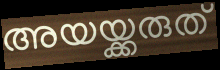
അയയ്ക്കരുത്